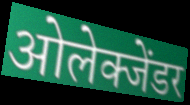
ओलेक्जेंडर